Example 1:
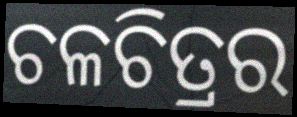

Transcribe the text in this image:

ଚଳଚିତ୍ରର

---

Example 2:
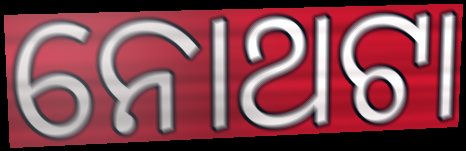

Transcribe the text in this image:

ନୋଥଟା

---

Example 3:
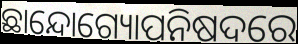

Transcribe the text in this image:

ଛାନ୍ଦୋଗ୍ୟୋପନିଷଦରେ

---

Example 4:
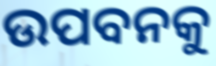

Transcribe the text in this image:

ଉପବନକୁ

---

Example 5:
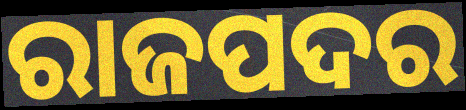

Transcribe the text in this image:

ରାଜପଦର